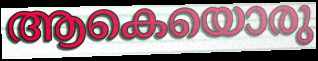
ആകെയൊരു